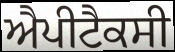
ਐਪੀਟੈਕਸੀ